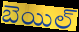
బెయిల్